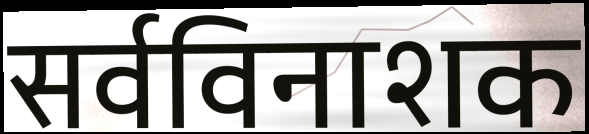
सर्वविनाशक